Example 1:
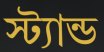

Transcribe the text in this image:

স্ট্যান্ড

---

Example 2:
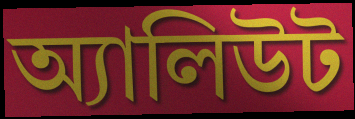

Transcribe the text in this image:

অ্যালিউট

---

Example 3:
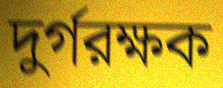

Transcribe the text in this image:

দুর্গরক্ষক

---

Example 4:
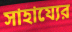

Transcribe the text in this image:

সাহায্যের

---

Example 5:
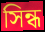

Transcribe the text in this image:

সিন্ধ